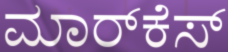
ಮಾರ್‌ಕೆಸ್